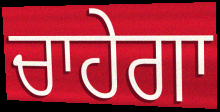
ਚਾਹੇਗਾ